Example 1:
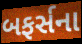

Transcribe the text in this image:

બફર્સના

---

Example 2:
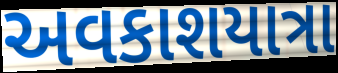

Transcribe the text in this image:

અવકાશયાત્રા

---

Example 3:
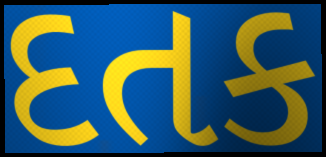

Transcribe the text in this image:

દતક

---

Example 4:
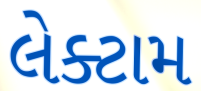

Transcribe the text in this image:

લેક્ટામ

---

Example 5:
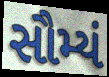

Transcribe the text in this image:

સૌમ્યં